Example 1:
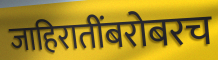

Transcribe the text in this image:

जाहिरातींबरोबरच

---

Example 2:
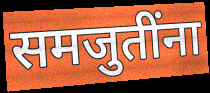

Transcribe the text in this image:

समजुतींना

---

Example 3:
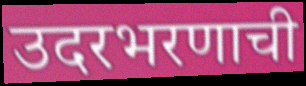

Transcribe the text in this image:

उदरभरणाची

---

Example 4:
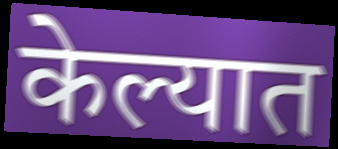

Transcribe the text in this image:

केल्यात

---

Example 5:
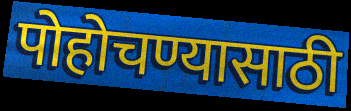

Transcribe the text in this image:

पोहोचण्यासाठी